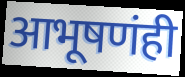
आभूषणंही